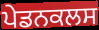
ਪੇਡਨਕਲਸ